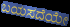
ಬಯಸದೆಯೇ